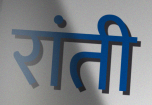
रांती